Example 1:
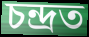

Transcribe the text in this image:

চন্দ্ৰত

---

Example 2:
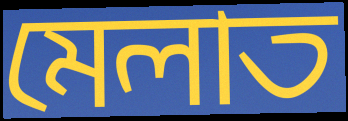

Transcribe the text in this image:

মেলাত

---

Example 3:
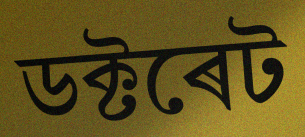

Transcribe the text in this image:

ডক্টৰেট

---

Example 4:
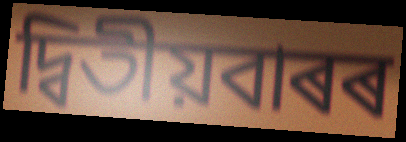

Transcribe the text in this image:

দ্বিতীয়বাৰৰ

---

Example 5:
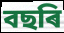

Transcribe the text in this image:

বছৰি